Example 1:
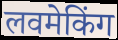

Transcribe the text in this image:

लवमेकिंग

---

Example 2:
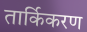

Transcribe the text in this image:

तार्किकरण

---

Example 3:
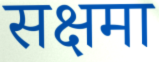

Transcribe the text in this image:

सक्षमा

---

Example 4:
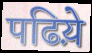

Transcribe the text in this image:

पढिय़े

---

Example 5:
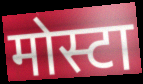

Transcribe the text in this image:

मोस्टा